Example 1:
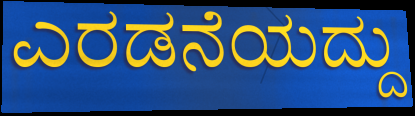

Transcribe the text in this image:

ಎರಡನೆಯದ್ದು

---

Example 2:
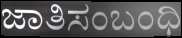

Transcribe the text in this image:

ಜಾತಿಸಂಬಂಧಿ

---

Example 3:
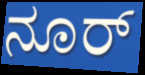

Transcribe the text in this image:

ನೂರ್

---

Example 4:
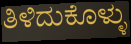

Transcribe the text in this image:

ತಿಳಿದುಕೊಳ್ಳು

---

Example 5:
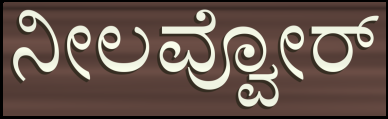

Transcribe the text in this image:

ನೀಲವ್ವೋರ್